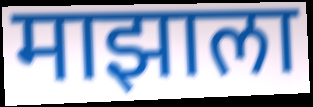
माझाला